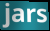
jars